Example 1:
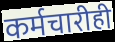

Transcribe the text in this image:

कर्मचारीही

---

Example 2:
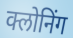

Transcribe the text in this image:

क्लोनिंग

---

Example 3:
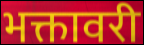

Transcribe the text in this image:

भक्तावरी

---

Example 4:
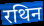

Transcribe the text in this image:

रथिन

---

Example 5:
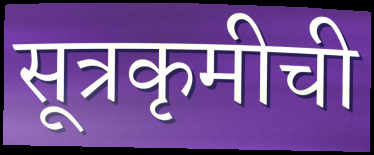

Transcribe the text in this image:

सूत्रकृमीची